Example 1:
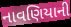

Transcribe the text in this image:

નાવણિયાની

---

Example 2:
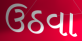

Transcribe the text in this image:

ઉઠવા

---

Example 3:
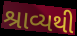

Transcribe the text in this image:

શ્રાવ્યથી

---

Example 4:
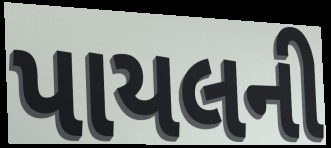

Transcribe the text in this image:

પાયલની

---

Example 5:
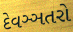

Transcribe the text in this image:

દેવઞ્ઞતરો